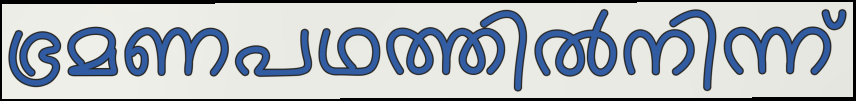
ഭ്രമണപഥത്തിൽനിന്ന്